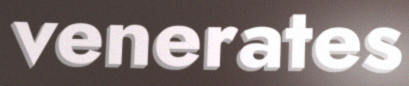
venerates